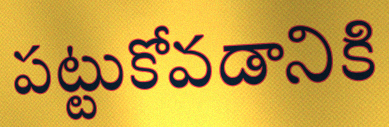
పట్టుకోవడానికి